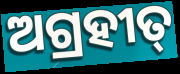
ଅଗ୍ରହୀତ୍